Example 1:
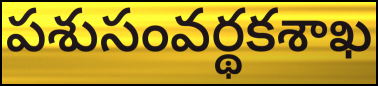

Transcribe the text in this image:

పశుసంవర్థకశాఖ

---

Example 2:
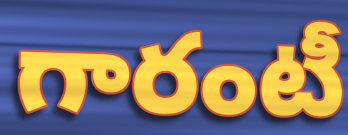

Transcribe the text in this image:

గారంటీ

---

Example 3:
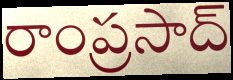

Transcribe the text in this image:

రాంప్రసాద్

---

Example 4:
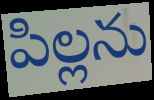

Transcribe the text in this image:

పిల్లను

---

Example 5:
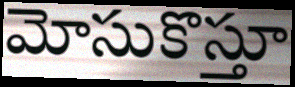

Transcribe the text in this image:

మోసుకొస్తూ